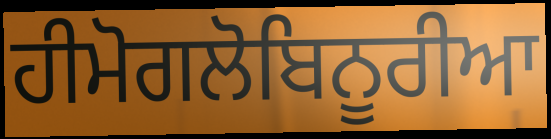
ਹੀਮੋਗਲੋਬਿਨੂਰੀਆ